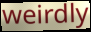
weirdly